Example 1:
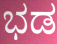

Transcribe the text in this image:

ಭಡ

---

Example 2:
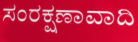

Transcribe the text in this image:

ಸಂರಕ್ಷಣಾವಾದಿ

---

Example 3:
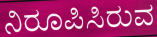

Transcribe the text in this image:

ನಿರೂಪಿಸಿರುವ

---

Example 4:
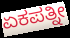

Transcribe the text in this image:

ಏಕಪತ್ನೀ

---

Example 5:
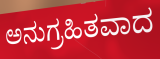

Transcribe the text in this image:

ಅನುಗ್ರಹಿತವಾದ